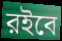
রইবে